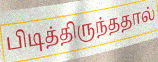
பிடித்திருந்ததால்